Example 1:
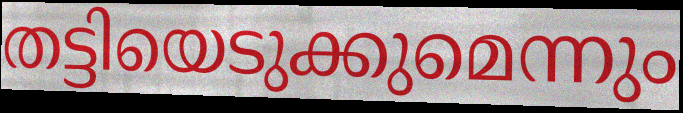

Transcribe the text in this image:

തട്ടിയെടുക്കുമെന്നും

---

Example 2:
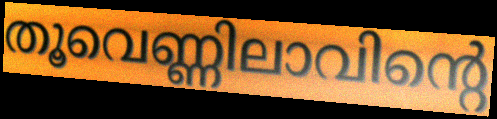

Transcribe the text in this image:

തൂവെണ്ണിലാവിന്റെ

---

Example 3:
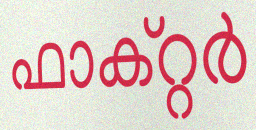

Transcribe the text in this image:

ഫാക്റ്റർ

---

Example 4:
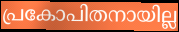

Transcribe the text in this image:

പ്രകോപിതനായില്ല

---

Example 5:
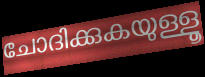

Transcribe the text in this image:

ചോദിക്കുകയുള്ളൂ